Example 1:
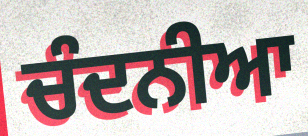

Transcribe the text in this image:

ਚੰਦਨੀਆ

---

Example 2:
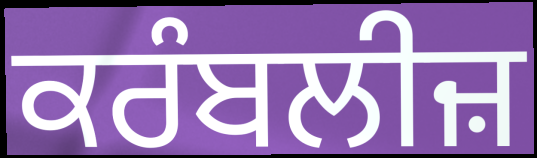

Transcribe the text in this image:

ਕਰੰਬਲੀਜ਼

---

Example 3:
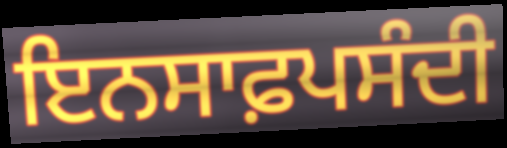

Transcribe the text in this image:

ਇਨਸਾਫ਼ਪਸੰਦੀ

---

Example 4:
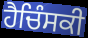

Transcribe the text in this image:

ਹੈਚਿੰਸਕੀ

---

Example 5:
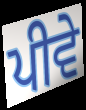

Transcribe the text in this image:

ਪੀਵੇ